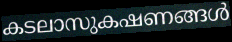
കടലാസുകഷണങ്ങൾ